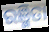
ରଞ୍ଜିତା